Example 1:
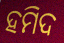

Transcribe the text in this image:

ହମିଦ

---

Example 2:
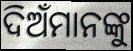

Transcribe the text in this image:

ଦିଅଁମାନଙ୍କୁ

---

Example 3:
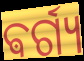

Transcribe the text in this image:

ଵର୍ଗ୍ଯ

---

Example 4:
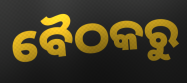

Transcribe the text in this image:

ବୈଠକରୁ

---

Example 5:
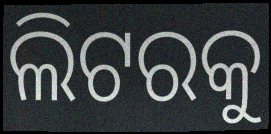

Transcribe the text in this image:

ଲିଟରକୁ